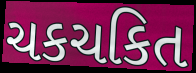
ચકચકિત